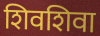
शिवशिवा